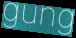
gung